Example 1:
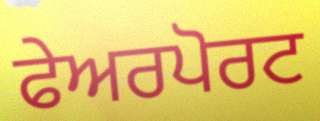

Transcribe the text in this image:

ਫੇਅਰਪੋਰਟ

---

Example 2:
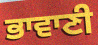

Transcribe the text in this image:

ਭਾਵਾਣੀ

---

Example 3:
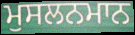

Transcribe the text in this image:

ਮੁਸਲਨਮਾਨ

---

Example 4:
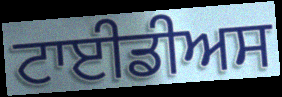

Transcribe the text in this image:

ਟਾਈਡੀਅਸ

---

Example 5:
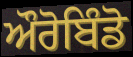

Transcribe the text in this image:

ਔਰੋਬਿੰਡੋ